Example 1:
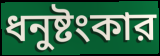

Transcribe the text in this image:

ধনুষ্টংকার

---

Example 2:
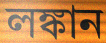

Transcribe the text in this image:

লঙ্কান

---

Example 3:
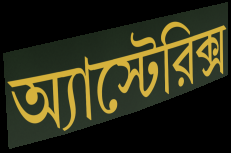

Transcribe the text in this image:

অ্যাস্টেরিক্স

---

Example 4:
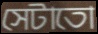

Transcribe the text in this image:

সেটাতো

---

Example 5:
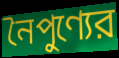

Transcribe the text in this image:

নৈপুণ্যের